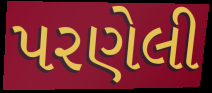
પરણેલી